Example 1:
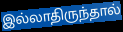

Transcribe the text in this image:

இல்லாதிருந்தால்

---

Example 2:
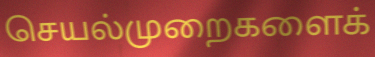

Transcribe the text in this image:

செயல்முறைகளைக்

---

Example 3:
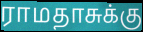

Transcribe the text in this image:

ராமதாசுக்கு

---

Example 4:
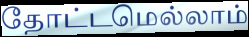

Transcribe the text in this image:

தோட்டமெல்லாம்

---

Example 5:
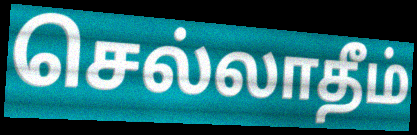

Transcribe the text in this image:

செல்லாதீம்